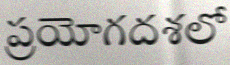
ప్రయోగదశలో